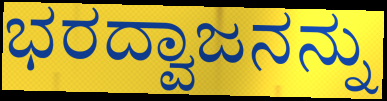
ಭರದ್ವಾಜನನ್ನು